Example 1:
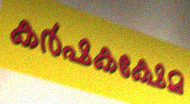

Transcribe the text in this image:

കർഷകക്ഷേമ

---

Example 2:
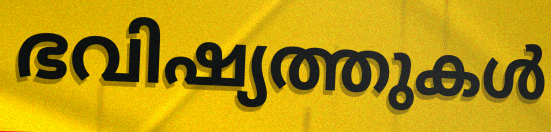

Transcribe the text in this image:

ഭവിഷ്യത്തുകൾ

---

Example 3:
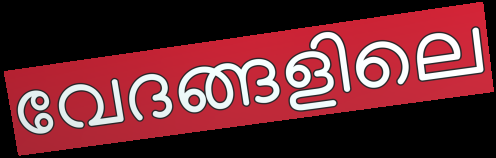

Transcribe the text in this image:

വേദങ്ങളിലെ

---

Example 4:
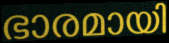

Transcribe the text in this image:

ഭാരമായി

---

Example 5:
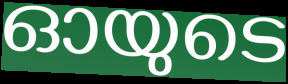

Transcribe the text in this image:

ഓയുടെ